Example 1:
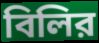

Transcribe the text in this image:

বিলির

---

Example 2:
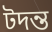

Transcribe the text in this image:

টদন্ত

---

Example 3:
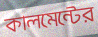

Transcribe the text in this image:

কালমেন্টের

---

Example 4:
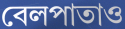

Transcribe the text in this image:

বেলপাতাও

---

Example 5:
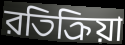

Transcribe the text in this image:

রতিক্রিয়া